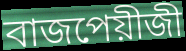
বাজপেয়ীজী